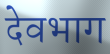
देवभाग